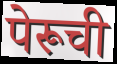
पेरूची